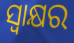
ସ୍ବାକ୍ଷର